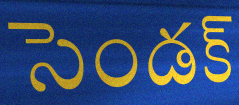
సెండక్